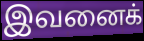
இவனைக்